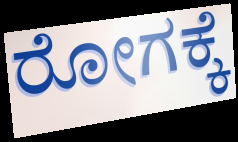
ರೋಗಕ್ಕೆ